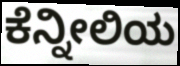
ಕೆನ್ನೀಲಿಯ